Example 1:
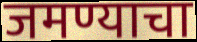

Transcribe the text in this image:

जमण्याचा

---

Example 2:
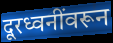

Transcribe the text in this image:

दूरध्वनींवरून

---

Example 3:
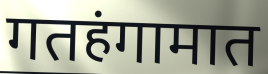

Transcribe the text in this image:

गतहंगामात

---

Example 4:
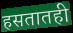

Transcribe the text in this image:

हसतातही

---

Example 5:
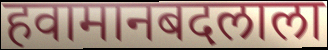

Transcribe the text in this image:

हवामानबदलाला